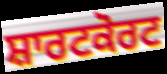
ਸ਼ਾਰਟਕੋਰਟ